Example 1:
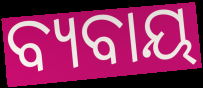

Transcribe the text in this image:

ବ୍ୟବାୟ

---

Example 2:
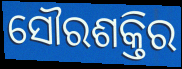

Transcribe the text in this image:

ସୌରଶକ୍ତିର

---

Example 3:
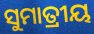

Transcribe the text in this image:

ସୁମାତ୍ରୀୟ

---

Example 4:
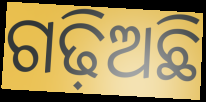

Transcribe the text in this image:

ଗଢ଼ିଅଛି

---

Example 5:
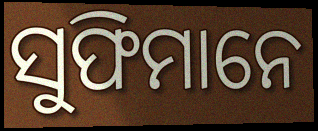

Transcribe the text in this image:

ସୁଫିମାନେ